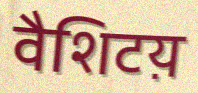
वैशिटय़